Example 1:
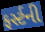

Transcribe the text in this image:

ફર્સ્ટની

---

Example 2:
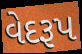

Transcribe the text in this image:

વેદરૂપ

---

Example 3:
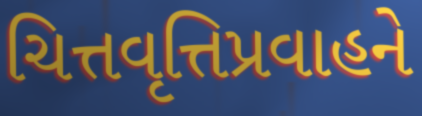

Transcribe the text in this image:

ચિત્તવૃત્તિપ્રવાહને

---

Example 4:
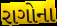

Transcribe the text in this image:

રાગોના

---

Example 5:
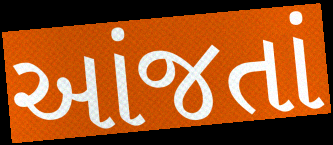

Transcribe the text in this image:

આંજતાં